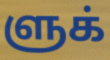
ளுக்